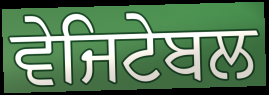
ਵੇਜਿਟੇਬਲ